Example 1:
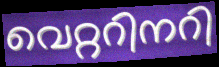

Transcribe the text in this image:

വെറ്ററിനറി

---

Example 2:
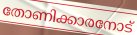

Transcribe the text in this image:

തോണിക്കാരനോട്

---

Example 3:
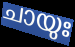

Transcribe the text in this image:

ചായുഃ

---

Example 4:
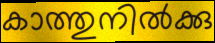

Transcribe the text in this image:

കാത്തുനിൽക്കു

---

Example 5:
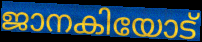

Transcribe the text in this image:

ജാനകിയോട്